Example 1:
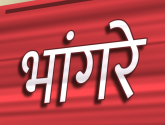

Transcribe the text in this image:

भांगरे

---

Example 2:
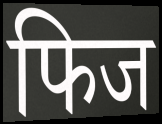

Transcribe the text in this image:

फिज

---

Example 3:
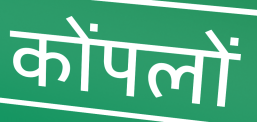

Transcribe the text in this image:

कोंपलों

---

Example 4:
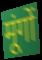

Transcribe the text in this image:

मूंगों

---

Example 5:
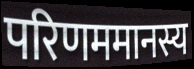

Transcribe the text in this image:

परिणममानस्य